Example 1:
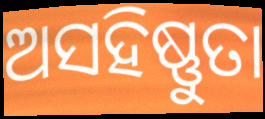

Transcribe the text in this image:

ଅସହିଷ୍ଣୁତା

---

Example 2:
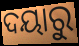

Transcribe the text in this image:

ଦୟାରୁ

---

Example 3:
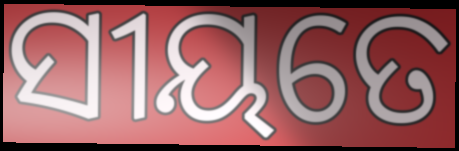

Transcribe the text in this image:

ସୀୟତେ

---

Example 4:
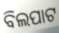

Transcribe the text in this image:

ବିଲପାଟ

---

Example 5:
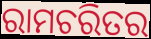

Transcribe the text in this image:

ରାମଚରିତର